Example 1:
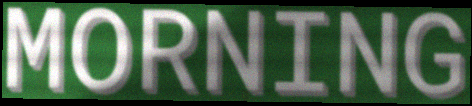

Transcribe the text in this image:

MORNING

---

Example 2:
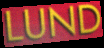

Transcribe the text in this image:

LUND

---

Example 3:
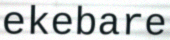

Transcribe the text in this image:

ekebare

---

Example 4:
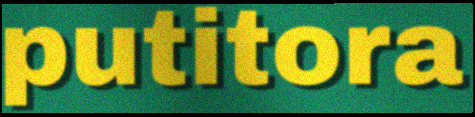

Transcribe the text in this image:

putitora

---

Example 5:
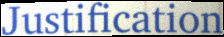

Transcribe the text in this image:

Justification